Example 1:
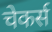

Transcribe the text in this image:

चेकर्स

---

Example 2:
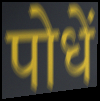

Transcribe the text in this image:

पोधें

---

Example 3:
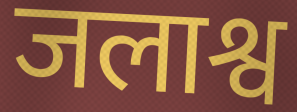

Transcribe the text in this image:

जलाश्व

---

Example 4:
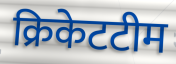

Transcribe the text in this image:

क्रिकेटटीम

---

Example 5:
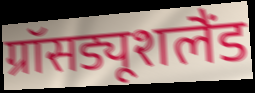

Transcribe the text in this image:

ग्रॉसड्यूशलैंड